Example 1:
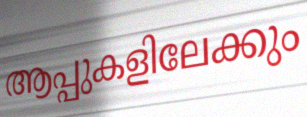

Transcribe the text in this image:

ആപ്പുകളിലേക്കും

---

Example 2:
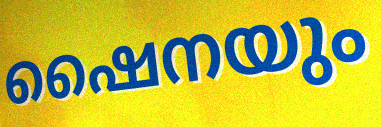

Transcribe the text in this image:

ഷൈനയും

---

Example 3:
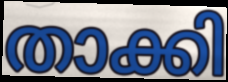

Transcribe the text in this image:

താക്കി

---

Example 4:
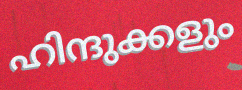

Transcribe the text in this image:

ഹിന്ദുക്കളും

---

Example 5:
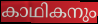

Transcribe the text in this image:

കാഥികനും